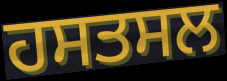
ਹਸਤਸਲ